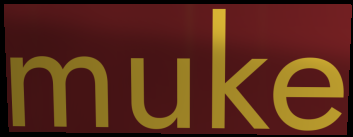
muke